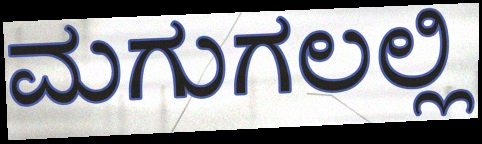
ಮಗುಗಲಲ್ಲಿ